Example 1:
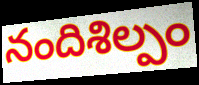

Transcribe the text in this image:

నందిశిల్పం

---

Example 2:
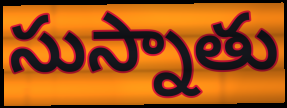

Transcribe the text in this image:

సుస్నాతు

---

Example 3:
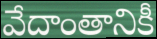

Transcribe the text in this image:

వేదాంతానికీ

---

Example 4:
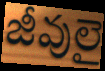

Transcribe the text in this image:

జీవులై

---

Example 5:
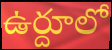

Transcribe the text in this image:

ఉర్దూలో